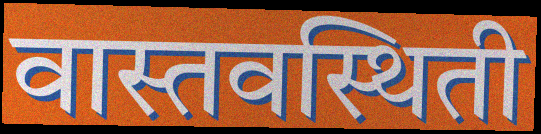
वास्तवस्थिती